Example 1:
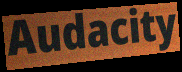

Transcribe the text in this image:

Audacity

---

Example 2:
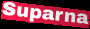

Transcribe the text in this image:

Suparna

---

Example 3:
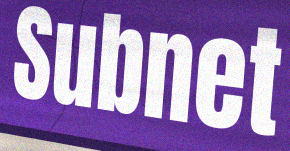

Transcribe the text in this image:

Subnet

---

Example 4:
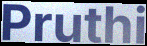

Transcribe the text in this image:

Pruthi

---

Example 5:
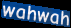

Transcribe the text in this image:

wahwah